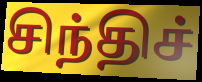
சிந்திச்